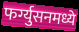
फर्ग्युसनमध्ये